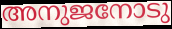
അനുജനോടു